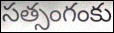
సత్సంగంకు